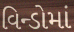
વિન્ડોમાં